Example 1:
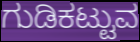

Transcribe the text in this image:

ಗುಡಿಕಟ್ಟುವ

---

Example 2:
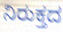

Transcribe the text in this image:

ನಿರುಕ್ತದ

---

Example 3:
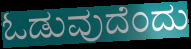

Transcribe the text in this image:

ಓಡುವುದೆಂದು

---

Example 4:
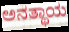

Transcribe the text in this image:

ಅನತ್ಥಾಯ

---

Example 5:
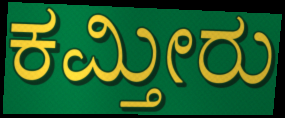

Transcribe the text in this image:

ಕಮ್ತೀರು